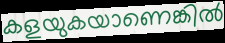
കളയുകയാണെങ്കിൽ